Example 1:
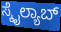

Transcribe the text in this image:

ಸ್ಕೈಲ್ಯಾಬ್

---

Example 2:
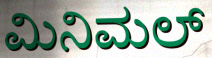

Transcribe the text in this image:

ಮಿನಿಮಲ್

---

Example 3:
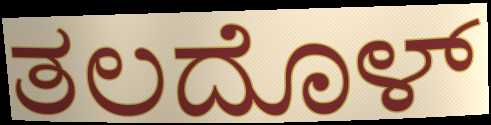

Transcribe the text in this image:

ತಲದೊಳ್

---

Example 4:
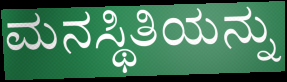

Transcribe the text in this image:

ಮನಸ್ಥಿತಿಯನ್ನು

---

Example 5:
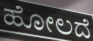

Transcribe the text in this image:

ಹೋಲದೆ